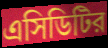
এসিডিটির